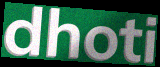
dhoti